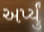
અર્પ્યું